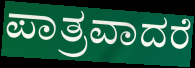
ಪಾತ್ರವಾದರೆ